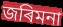
জৰিমনা